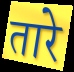
तारे